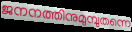
ജനനത്തിനുമുമ്പുതന്നെ